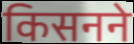
किसनने